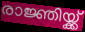
രാജ്ഞിയ്ക്ക്